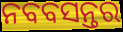
ନବବସନ୍ତର